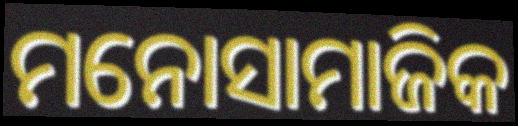
ମନୋସାମାଜିକ